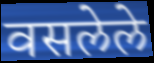
वसलेले